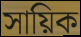
সায়িক